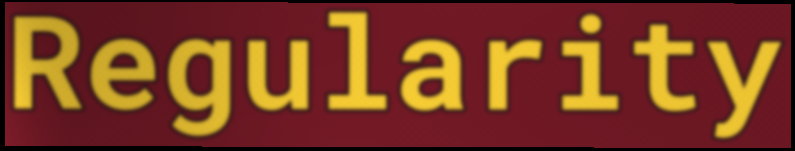
Regularity